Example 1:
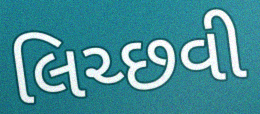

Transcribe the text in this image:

લિચ્છવી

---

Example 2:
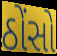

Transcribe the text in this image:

ઠોંસો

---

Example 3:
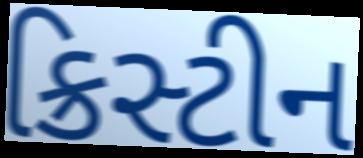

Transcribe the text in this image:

ક્રિસ્ટીન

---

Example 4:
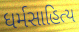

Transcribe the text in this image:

ધર્મસાહિત્ય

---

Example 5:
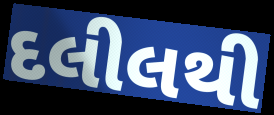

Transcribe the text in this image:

દલીલથી